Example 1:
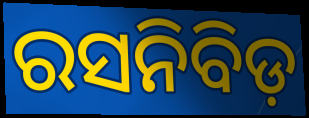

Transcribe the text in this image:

ରସନିବିଡ଼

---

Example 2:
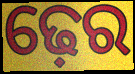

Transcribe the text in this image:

ଢ଼େର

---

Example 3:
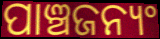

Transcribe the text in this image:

ପାଞ୍ଚଜନ୍ୟଂ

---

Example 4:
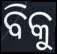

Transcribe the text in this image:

ବିକୁ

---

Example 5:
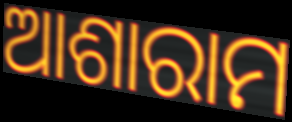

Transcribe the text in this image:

ଆଶାରାମ